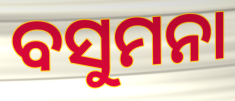
ବସୁମନା